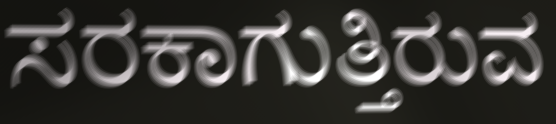
ಸರಕಾಗುತ್ತಿರುವ